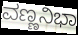
ವಣ್ಣನಿಭಾ